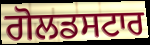
ਗੋਲਡਸਟਾਰ